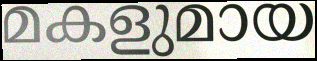
മകളുമായ